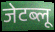
जेटब्लू